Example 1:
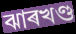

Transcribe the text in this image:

ঝাৰখণ্ড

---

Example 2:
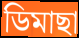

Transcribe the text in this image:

ডিমাছা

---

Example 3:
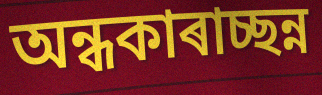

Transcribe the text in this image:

অন্ধকাৰাচ্ছন্ন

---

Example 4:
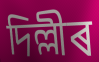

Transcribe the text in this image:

দিল্লীৰ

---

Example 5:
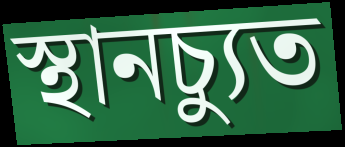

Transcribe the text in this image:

স্থানচ্যুত